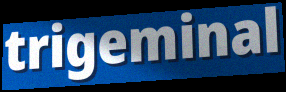
trigeminal